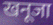
खनूजा